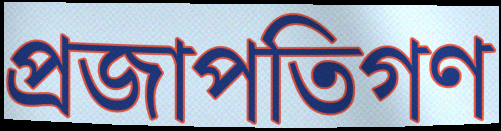
প্রজাপতিগণ